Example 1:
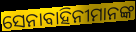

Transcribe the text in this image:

ସେନାବାହିନୀମାନଙ୍କ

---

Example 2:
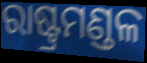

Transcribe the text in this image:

ରାଷ୍ଟ୍ରମଣ୍ଡଳ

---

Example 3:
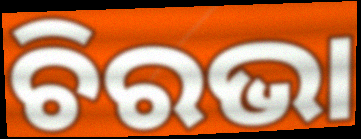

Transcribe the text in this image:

ଚିରଭା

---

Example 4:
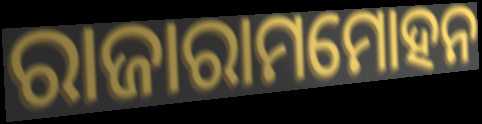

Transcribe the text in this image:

ରାଜାରାମମୋହନ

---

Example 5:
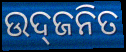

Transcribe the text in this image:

ଉଦ୍‌ଜନିତ